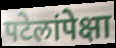
पटेलांपेक्षा